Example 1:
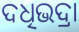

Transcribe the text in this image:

ଦଧିଭଦ୍ରା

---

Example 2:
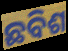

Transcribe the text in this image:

ଛବିଶ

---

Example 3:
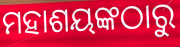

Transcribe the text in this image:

ମହାଶୟଙ୍କଠାରୁ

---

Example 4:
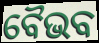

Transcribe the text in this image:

ବୈଭବ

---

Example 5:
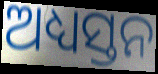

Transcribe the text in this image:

ଅଧ୍ୟସ୍ତନ